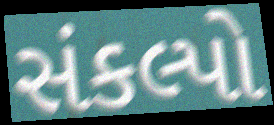
સંકલ્પો